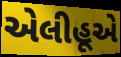
એલીહૂએ